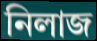
নিলাজ